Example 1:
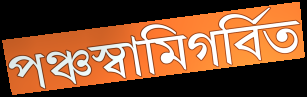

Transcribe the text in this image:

পঞ্চস্বামিগর্বিত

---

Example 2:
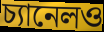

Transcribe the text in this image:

চ্যানেলও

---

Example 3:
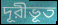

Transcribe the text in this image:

দূরীভূত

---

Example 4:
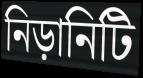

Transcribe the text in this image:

নিড়ানিটি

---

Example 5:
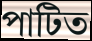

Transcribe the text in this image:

পাটিত